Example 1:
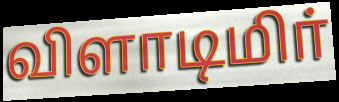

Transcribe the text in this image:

விளாடிமிர்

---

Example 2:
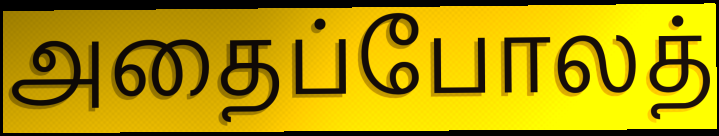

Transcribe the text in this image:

அதைப்போலத்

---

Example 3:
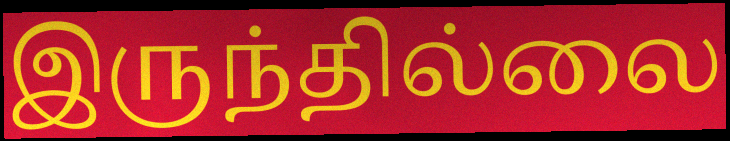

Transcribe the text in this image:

இருந்தில்லை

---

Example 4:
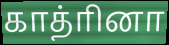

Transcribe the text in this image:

காத்ரினா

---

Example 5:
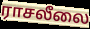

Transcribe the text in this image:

ராசலீலை